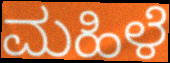
ಮಹಿಳೆ